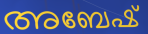
അബേഷ്